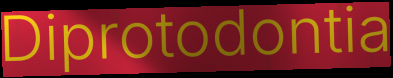
Diprotodontia